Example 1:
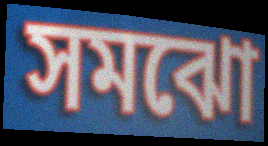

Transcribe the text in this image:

সমঝো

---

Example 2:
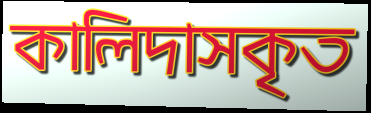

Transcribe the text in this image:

কালিদাসকৃত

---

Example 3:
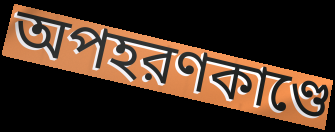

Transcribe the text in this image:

অপহরণকাণ্ডে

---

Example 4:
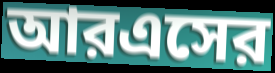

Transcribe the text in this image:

আরএসের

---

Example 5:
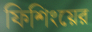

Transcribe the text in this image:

ফিশিংয়ের